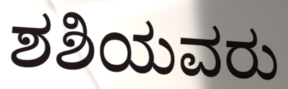
ಶಶಿಯವರು